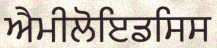
ਐਮੀਲੋਇਡਸਿਸ